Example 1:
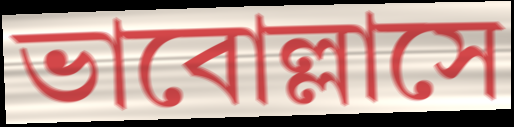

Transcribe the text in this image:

ভাবোল্লাসে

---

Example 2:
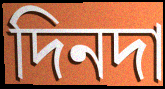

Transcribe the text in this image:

দিনদা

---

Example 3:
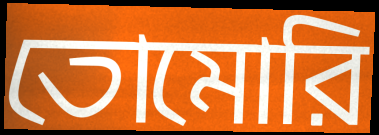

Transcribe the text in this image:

তোমোরি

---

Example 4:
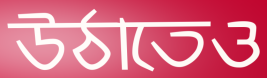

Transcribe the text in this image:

উঠাতেও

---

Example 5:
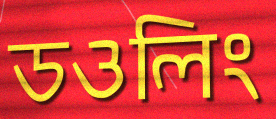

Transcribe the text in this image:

ডওলিং